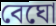
বেঘো